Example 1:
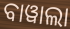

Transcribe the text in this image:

ବାୱାଲା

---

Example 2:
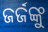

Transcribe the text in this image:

ଜର୍ଜଙ୍କୁ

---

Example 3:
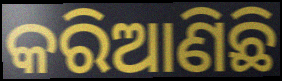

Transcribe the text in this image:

କରିଆଣିଛି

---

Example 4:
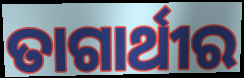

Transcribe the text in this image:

ତାଗାର୍ଥୀର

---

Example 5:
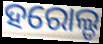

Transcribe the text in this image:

ହରୋଲ୍ଡ